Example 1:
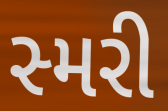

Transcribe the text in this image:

સ્મરી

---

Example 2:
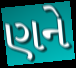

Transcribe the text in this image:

ણને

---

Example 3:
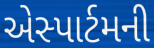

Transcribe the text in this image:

એસ્પાર્ટમની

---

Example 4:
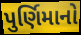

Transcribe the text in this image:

પુર્ણિમાનો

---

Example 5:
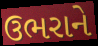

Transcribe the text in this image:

ઉભરાને